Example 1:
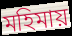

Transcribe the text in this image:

মহিমায়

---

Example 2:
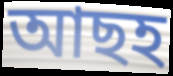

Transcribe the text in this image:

আছহ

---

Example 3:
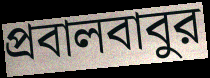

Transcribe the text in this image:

প্রবালবাবুর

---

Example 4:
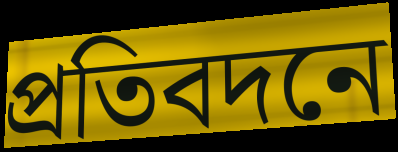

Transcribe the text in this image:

প্রতিবদনে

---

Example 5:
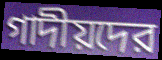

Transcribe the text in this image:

গাদীয়দের